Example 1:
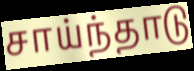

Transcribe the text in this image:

சாய்ந்தாடு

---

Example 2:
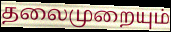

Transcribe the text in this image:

தலைமுறையும்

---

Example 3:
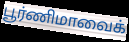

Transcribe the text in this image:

பூர்ணிமாவைக்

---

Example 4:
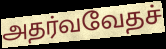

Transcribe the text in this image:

அதர்வவேதச்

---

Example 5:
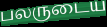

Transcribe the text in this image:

பலருடைய